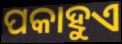
ପକାହୁଏ